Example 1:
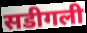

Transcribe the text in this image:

सडीगली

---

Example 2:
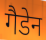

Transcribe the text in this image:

गैडेन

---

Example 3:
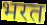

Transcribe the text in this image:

भरत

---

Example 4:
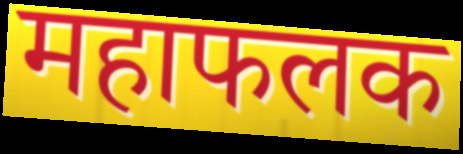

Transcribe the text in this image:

महाफलक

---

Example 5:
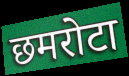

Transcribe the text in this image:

छमरोटा